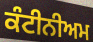
ਕੰਟੀਨੀਅਮ